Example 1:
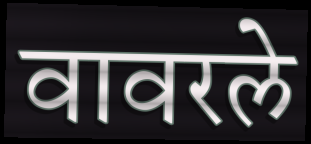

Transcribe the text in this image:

वावरले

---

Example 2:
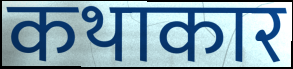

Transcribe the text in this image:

कथाकार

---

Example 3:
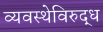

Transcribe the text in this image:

व्यवस्थेविरुद्ध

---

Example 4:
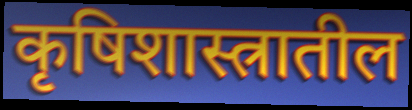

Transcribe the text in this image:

कृषिशास्त्रातील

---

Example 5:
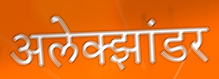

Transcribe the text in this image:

अलेक्झांडर